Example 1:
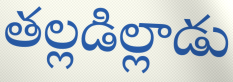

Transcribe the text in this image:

తల్లడిల్లాడు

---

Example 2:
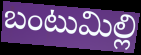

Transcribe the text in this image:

బంటుమిల్లి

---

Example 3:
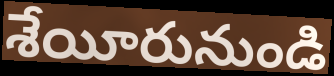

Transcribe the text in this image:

శేయీరునుండి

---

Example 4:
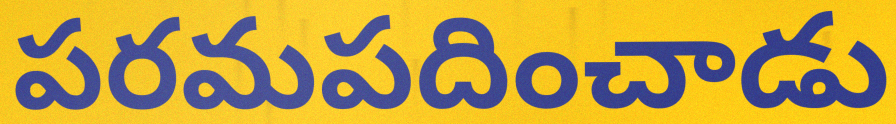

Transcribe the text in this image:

పరమపదించాడు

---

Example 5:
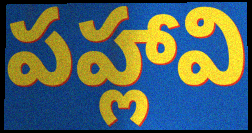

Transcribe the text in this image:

పహ్లావి